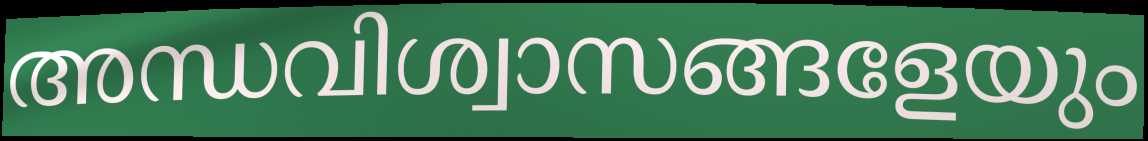
അന്ധവിശ്വാസങ്ങളേയും